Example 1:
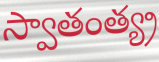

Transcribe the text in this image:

స్వాతంత్య్ర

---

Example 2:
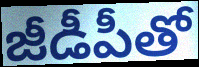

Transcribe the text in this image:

జీడీపీతో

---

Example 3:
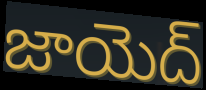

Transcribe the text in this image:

జాయెద్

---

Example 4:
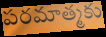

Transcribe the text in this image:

పరమాత్మకు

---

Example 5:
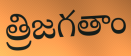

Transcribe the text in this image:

త్రిజగతాం